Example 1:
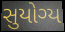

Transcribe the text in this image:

સુયોગ્ય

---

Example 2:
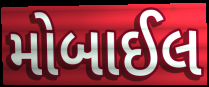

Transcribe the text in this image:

મોબાઈલ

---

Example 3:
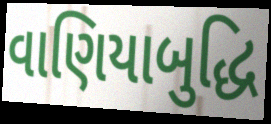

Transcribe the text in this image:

વાણિયાબુદ્ધિ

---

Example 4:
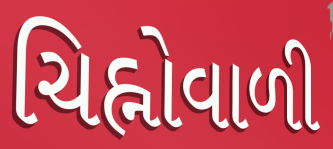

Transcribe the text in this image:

ચિહ્નોવાળી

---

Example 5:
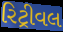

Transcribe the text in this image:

રિટ્રીવલ